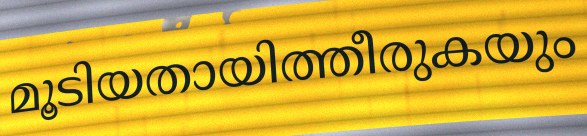
മൂടിയതായിത്തീരുകയും